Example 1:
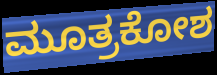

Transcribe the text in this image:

ಮೂತ್ರಕೋಶ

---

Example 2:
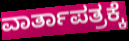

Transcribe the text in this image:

ವಾರ್ತಾಪತ್ರಕ್ಕೆ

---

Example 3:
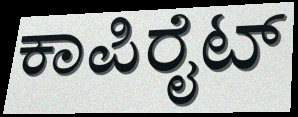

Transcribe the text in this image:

ಕಾಪಿರೈಟ್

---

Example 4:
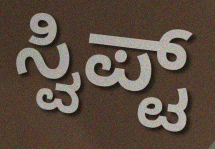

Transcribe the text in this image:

ಸ್ವಿಪ್ಟ್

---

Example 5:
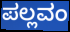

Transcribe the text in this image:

ಪಲ್ಲವಂ